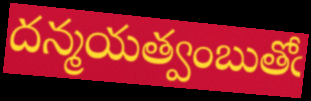
దన్మయత్వంబుతోఁ